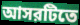
আসরটিতে